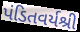
પંડિતવર્યશ્રી